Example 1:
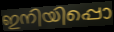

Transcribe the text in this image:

ഇനിയിപ്പൊ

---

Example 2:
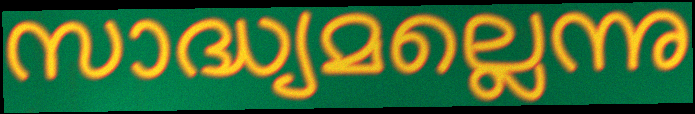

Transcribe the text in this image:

സാദ്ധ്യമല്ലെന്നു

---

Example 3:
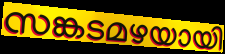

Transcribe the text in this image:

സങ്കടമഴയായി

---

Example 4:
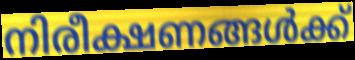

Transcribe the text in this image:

നിരീക്ഷണങ്ങൾക്ക്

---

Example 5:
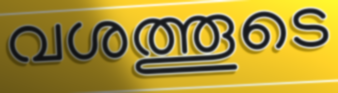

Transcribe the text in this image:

വശത്തൂടെ